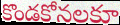
కొండకోనలకూ